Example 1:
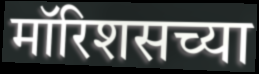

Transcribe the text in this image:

मॉरिशसच्या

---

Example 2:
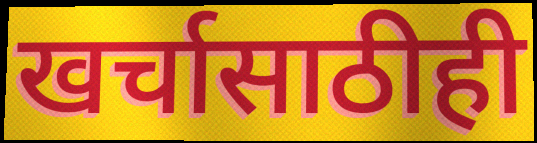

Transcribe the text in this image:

खर्चासाठीही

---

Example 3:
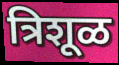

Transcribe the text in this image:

त्रिशूळ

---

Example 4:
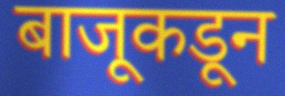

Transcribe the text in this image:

बाजूकडून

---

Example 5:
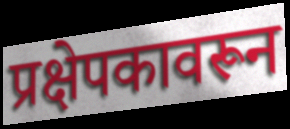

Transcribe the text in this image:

प्रक्षेपकावरून